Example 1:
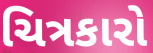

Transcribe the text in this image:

ચિત્રકારો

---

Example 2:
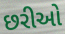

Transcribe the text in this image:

છરીઓ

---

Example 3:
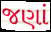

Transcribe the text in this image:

જણાં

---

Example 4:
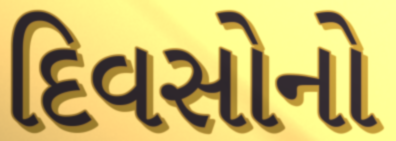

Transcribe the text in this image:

દિવસોનો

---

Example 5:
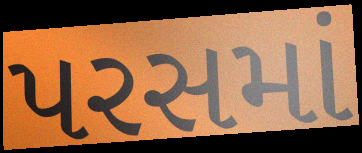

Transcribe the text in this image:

પરસમાં